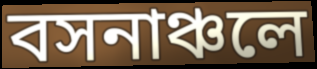
বসনাঞ্চলে